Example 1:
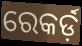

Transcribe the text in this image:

ରେକର୍ଡ଼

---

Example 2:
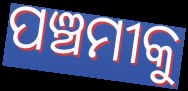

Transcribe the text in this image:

ପଞ୍ଚମୀକୁ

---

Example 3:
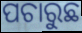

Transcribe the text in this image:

ପଚାରୁଛ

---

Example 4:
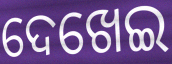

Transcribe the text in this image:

ଦେଖେଇ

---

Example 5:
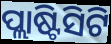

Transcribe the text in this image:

ପ୍ଲାଷ୍ଟିସିଟି